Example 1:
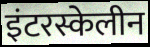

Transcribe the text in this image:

इंटरस्केलीन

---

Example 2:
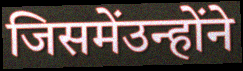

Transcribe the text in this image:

जिसमेंउन्होंने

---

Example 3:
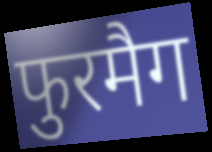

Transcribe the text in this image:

फुरमैग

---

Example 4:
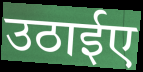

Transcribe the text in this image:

उठाईए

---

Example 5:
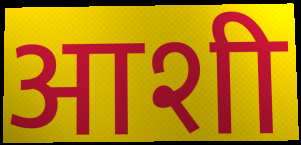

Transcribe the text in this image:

आशी